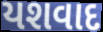
યશવાદ